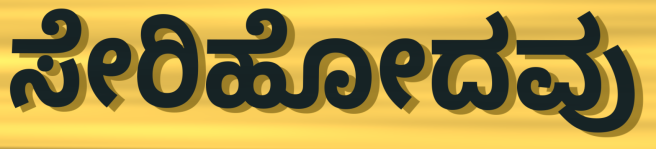
ಸೇರಿಹೋದವು